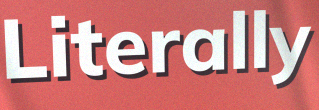
Literally